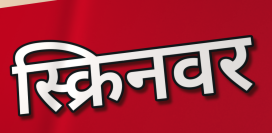
स्क्रिनवर